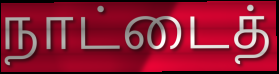
நாட்டைத்